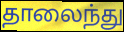
தாலைந்து